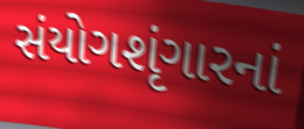
સંયોગશૃંગારનાં